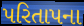
પરિતાપના